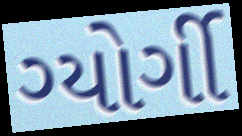
ગ્યોર્ગી